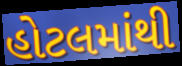
હોટલમાંથી